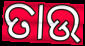
ତାଉ